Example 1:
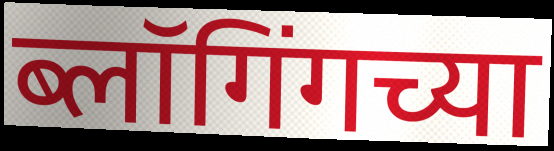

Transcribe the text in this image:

ब्लॉगिंगच्या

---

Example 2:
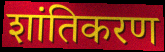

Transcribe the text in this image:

शांतिकरण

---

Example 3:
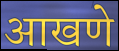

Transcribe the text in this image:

आखणे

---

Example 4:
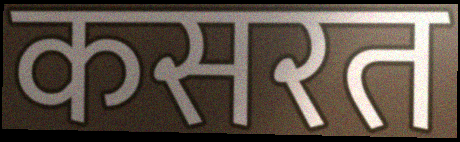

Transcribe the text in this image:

कसरत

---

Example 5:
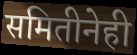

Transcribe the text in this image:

समितीनेही